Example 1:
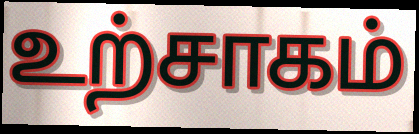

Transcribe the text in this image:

உற்சாகம்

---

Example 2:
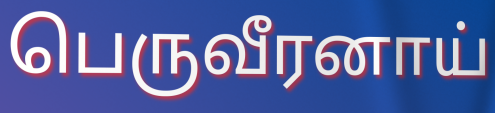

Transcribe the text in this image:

பெருவீரனாய்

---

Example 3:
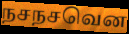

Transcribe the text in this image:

நசநசவென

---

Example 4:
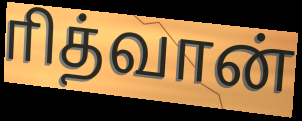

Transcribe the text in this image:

ரித்வான்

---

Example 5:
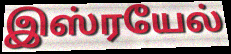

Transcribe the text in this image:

இஸ்ரயேல்